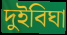
দুইবিঘা